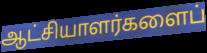
ஆட்சியாளர்களைப்